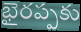
భైరప్పకు